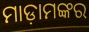
ମାଡ଼ାମଙ୍କର